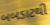
બબડાટથી